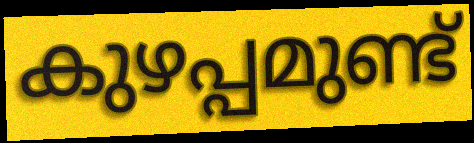
കുഴപ്പമുണ്ട്